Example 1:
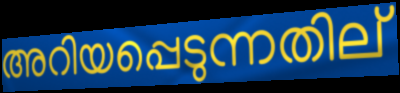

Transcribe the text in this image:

അറിയപ്പെടുന്നതില്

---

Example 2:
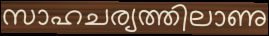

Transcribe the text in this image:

സാഹചര്യത്തിലാണു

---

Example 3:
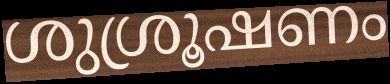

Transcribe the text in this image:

ശുശ്രൂഷണം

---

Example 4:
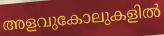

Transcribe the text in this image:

അളവുകോലുകളിൽ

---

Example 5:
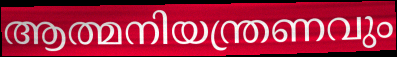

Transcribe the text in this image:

ആത്മനിയന്ത്രണവും